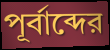
পূর্বাব্দের